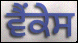
ਵੈਂਕੇਸ